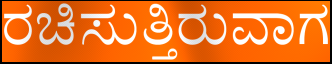
ರಚಿಸುತ್ತಿರುವಾಗ